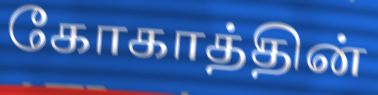
கோகாத்தின்